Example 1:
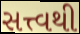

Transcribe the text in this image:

સત્ત્વથી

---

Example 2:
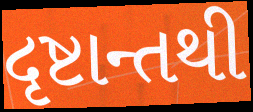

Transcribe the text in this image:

દૃષ્ટાન્તથી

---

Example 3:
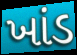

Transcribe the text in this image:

ખાંડ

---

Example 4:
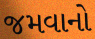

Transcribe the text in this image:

જમવાનો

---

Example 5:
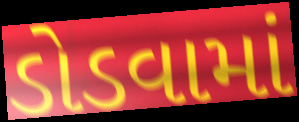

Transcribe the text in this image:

ડોડવામાં